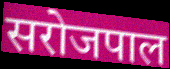
सरोजपाल